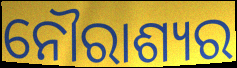
ନୌରାଶ୍ୟର